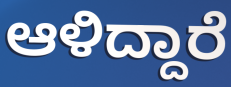
ಆಳಿದ್ದಾರೆ